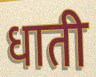
धाती